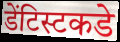
डेंटिस्टकडे